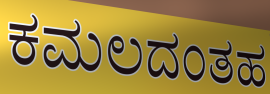
ಕಮಲದಂತಹ